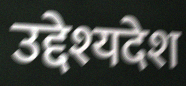
उद्देश्यदेश